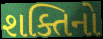
શક્તિનો